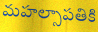
మహల్సాపతికి